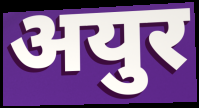
अयुर